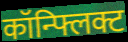
कॉन्फ्लिक्ट